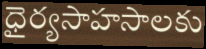
ధైర్యసాహసాలకు